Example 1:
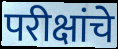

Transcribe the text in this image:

परीक्षांचे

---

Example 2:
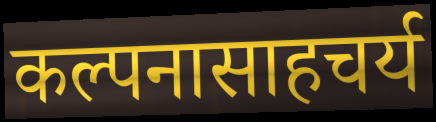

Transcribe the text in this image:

कल्पनासाहचर्य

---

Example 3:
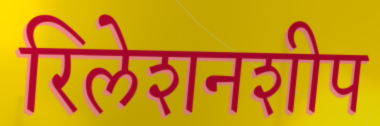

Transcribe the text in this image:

रिलेशनशीप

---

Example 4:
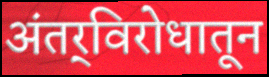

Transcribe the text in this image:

अंतर्विरोधातून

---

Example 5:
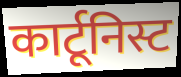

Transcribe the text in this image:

कार्टूनिस्ट